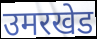
उमरखेड